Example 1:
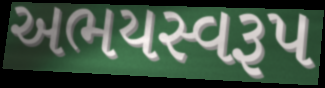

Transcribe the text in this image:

અભયસ્વરૂપ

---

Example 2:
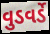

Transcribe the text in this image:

વુડવર્ડે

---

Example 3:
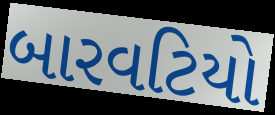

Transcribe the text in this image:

બારવટિયો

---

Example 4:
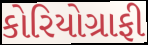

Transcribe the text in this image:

કોરિયોગ્રાફી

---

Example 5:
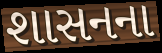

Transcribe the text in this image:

શાસનના